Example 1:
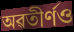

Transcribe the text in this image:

অৱতীৰ্ণও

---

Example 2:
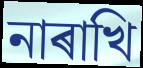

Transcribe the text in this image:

নাৰাখি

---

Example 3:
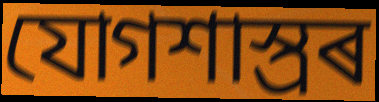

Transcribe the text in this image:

যোগশাস্ত্ৰৰ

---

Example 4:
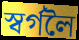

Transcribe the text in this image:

স্বৰ্গলৈ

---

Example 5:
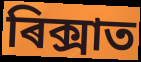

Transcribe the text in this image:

ৰিক্সাত